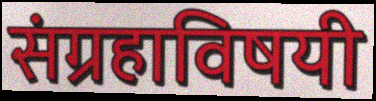
संग्रहाविषयी